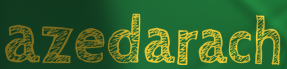
azedarach